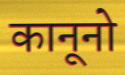
कानूनो